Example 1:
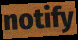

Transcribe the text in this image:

notify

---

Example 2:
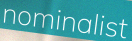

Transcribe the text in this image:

nominalist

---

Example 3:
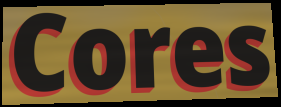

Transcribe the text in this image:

Cores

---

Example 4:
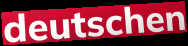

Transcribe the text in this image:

deutschen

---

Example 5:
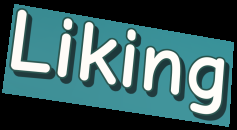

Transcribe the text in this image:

Liking